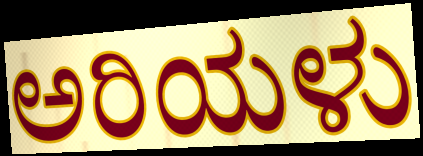
ಅರಿಯಳು